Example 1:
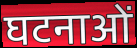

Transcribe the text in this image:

घटनाओं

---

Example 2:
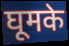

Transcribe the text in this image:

घूमके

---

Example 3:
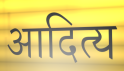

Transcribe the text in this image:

आदित्‍य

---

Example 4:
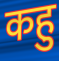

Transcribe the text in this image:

कहु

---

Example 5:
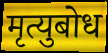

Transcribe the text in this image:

मृत्युबोध